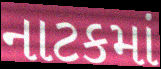
નાટકમાં